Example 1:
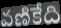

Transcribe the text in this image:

వణికేది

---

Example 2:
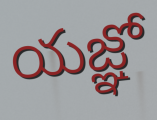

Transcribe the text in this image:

యజ్ఞో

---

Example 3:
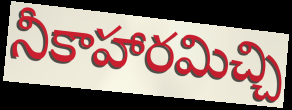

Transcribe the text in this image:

నీకాహారమిచ్చి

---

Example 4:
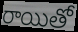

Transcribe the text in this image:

రాయితో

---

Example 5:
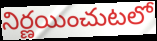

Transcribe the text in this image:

నిర్ణయించుటలో